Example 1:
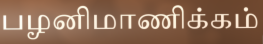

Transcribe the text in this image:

பழனிமாணிக்கம்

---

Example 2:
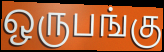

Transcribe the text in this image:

ஒருபங்கு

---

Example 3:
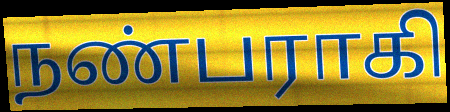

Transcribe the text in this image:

நண்பராகி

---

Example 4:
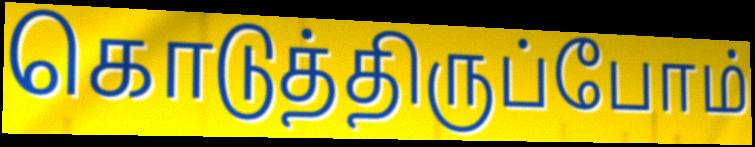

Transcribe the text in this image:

கொடுத்திருப்போம்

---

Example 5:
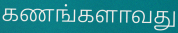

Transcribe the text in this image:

கணங்களாவது